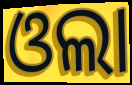
ଓଲା